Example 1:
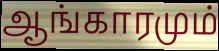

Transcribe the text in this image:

ஆங்காரமும்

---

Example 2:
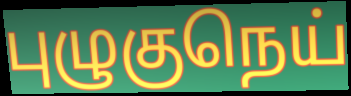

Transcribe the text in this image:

புழுகுநெய்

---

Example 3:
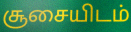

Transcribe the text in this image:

சூசையிடம்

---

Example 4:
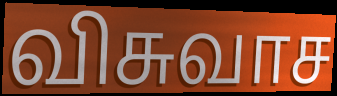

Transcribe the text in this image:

விசுவாச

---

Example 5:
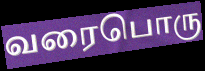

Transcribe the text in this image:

வரைபொரு